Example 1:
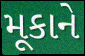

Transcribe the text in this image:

મૂકાને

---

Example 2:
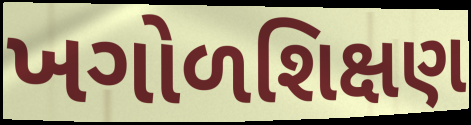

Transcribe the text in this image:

ખગોળશિક્ષણ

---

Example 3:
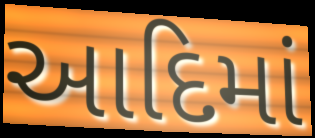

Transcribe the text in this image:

આદિમાં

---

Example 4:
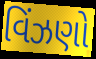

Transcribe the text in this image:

વિંઝણો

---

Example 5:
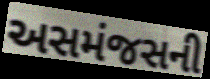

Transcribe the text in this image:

અસમંજસની